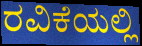
ರವಿಕೆಯಲ್ಲಿ